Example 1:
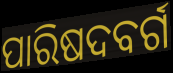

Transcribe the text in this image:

ପାରିଷଦବର୍ଗ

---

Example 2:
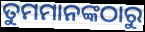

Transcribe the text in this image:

ତୁମମାନଙ୍କଠାରୁ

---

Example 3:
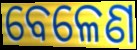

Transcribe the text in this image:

ବେଳେଣ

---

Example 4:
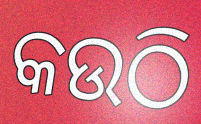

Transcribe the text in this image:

କଉଠି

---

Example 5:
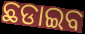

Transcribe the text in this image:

ଛଡାଇବ